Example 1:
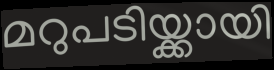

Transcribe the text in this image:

മറുപടിയ്ക്കായി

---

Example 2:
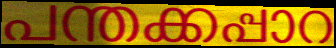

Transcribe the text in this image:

പന്തക്കപ്പാറ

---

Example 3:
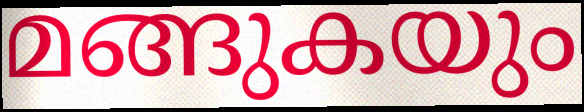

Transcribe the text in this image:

മങ്ങുകയും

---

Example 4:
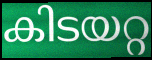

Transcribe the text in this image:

കിടയറ്റ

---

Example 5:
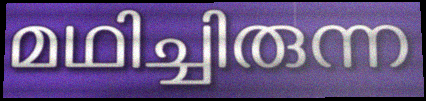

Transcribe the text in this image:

മഥിച്ചിരുന്ന